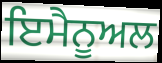
ਇਮੈਨੂਅਲ